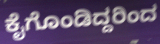
ಕೈಗೊಂಡಿದ್ದರಿಂದ